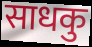
साधकु